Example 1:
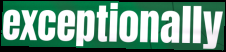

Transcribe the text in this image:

exceptionally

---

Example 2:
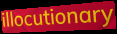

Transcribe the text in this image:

illocutionary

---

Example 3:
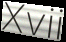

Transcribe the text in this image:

Xvii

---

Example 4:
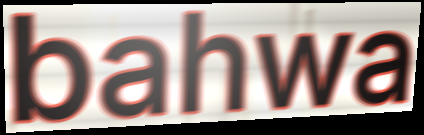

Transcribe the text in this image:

bahwa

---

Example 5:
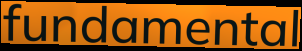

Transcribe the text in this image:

fundamental